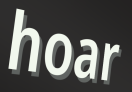
hoar